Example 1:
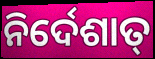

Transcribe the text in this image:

ନିର୍ଦେଶାତ୍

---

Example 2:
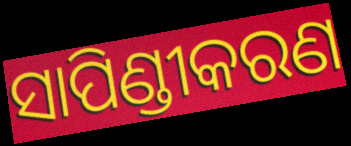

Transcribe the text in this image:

ସାପିଣ୍ଡୀକରଣ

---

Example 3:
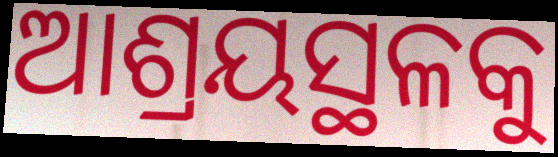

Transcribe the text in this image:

ଆଶ୍ରୟସ୍ଥଳକୁ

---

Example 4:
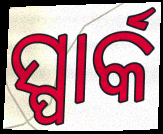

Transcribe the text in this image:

ସ୍ପାର୍କ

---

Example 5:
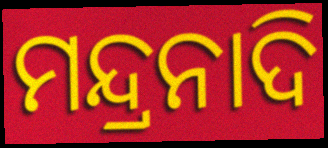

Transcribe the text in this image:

ମନ୍ଦ୍ରନାଦି